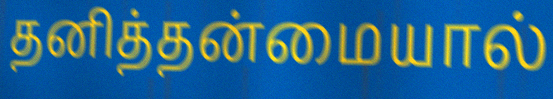
தனித்தன்மையால்